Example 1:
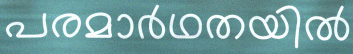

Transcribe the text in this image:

പരമാർഥതയിൽ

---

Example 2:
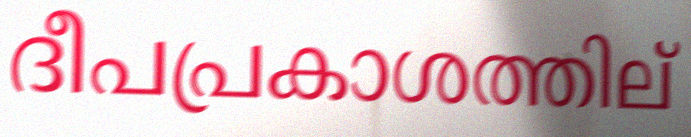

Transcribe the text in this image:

ദീപപ്രകാശത്തില്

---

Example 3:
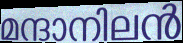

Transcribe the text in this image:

മന്ദാനിലൻ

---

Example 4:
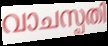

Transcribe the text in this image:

വാചസ്പതി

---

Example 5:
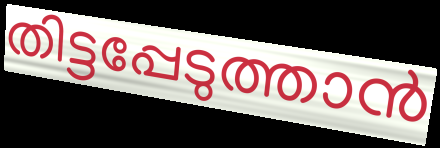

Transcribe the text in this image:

തിട്ടപ്പേടുത്താൻ